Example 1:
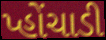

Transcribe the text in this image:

પ્હોંચાડી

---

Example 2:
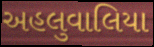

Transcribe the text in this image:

અહલુવાલિયા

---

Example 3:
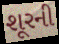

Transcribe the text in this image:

શૂરની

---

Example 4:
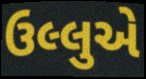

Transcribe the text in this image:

ઉલ્લુએ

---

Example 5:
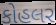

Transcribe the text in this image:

કોહલર